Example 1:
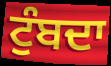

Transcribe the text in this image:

ਟੁੰਬਦਾ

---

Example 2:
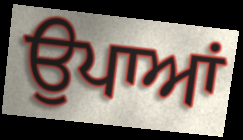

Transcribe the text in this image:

ਉਪਾਆਂ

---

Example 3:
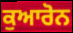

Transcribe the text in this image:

ਕੁਆਰੋਨ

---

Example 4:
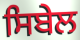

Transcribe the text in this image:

ਸਿਬੇਲ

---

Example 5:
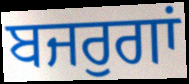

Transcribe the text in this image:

ਬਜਰੁਗਾਂ